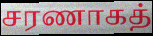
சரணாகத்